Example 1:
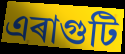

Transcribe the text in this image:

এৰাগুটি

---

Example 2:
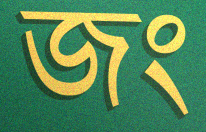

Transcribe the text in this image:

জং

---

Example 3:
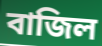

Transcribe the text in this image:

বাজিল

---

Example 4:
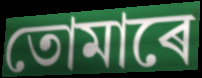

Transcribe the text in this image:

তোমাৰে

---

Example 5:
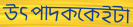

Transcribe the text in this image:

উৎপাদককেইটা